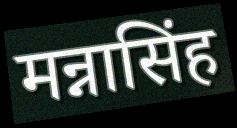
मन्नासिंह